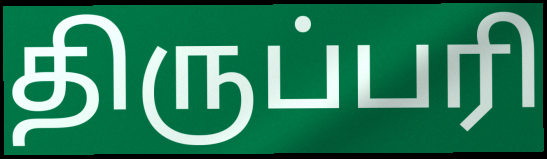
திருப்பரி